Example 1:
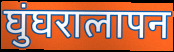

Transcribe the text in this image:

घुंघरालापन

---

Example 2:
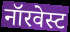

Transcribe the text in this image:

नॉरवेस्ट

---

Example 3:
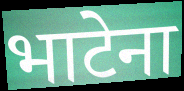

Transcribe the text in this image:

भाटेना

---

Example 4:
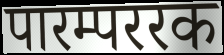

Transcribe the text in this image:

पारम्पररक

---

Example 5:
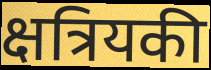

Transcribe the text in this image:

क्षत्रियकी